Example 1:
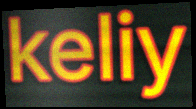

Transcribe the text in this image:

keliy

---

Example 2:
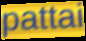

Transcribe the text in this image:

pattai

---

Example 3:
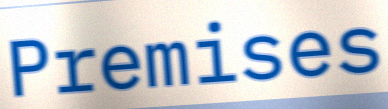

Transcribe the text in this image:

Premises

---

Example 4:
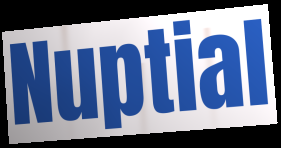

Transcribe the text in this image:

Nuptial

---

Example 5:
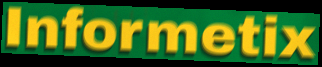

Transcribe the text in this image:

Informetix